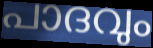
പാദവും